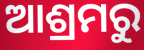
ଆଶ୍ରମରୁ